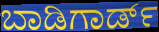
ಬಾಡಿಗಾರ್ಡ್